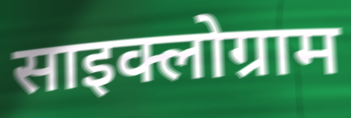
साइक्लोग्राम